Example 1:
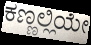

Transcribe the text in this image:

ಕಣ್ಣಲ್ಲಿಯೇ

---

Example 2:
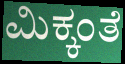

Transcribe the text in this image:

ಮಿಕ್ಕಂತೆ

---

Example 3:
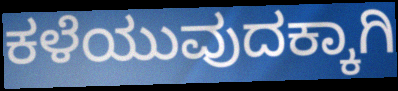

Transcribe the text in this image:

ಕಳೆಯುವುದಕ್ಕಾಗಿ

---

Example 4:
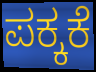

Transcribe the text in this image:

ಪಕ್ಕಕೆ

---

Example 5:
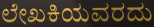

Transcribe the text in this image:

ಲೇಖಕಿಯವರದು